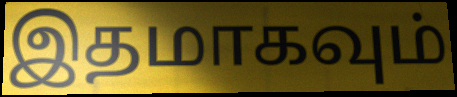
இதமாகவும்